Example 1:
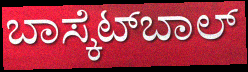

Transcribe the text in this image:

ಬಾಸ್ಕೆಟ್‍ಬಾಲ್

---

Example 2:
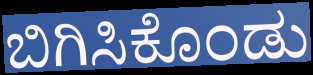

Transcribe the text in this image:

ಬಿಗಿಸಿಕೊಂಡು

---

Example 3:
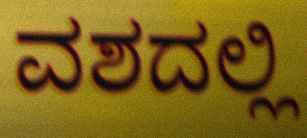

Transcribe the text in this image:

ವಶದಲ್ಲಿ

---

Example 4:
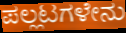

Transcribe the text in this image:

ಪಲ್ಲಟಗಳೇನು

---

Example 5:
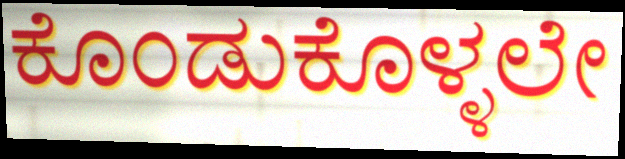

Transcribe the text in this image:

ಕೊಂಡುಕೊಳ್ಳಲೇ